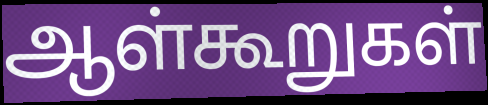
ஆள்கூறுகள்